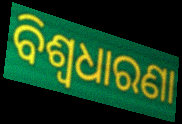
ବିଶ୍ୱଧାରଣା